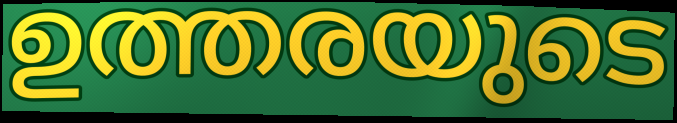
ഉത്തരയുടെ